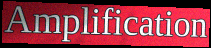
Amplification